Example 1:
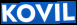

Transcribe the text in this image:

KOVIL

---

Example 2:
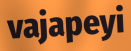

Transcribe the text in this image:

vajapeyi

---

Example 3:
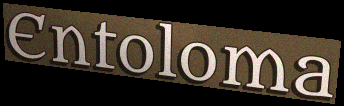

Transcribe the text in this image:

Entoloma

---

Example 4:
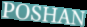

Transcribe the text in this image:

POSHAN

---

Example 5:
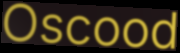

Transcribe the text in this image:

Oscood